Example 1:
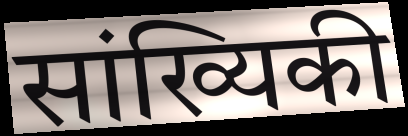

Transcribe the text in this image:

सांख्यिकी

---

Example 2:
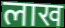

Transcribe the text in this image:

लाख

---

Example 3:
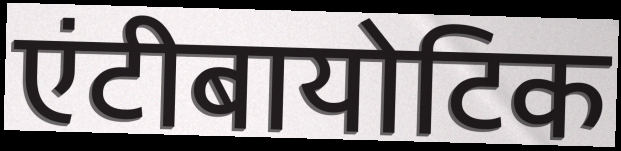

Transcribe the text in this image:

एंटीबायोटिक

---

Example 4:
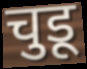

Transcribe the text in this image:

चुडू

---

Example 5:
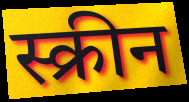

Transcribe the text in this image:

स्क्रीन